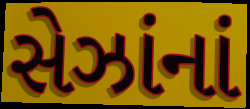
સેઝાંનાં